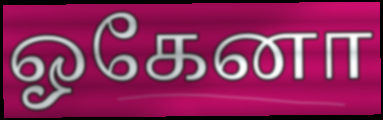
ஓகேனா